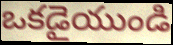
ఒకడైయుండి